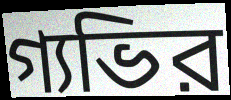
গ্যভির